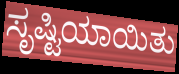
ಸೃಷ್ಟಿಯಾಯಿತು